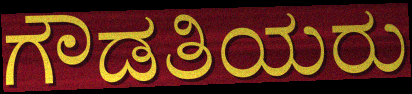
ಗೌಡತಿಯರು